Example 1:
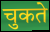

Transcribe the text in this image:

चुकते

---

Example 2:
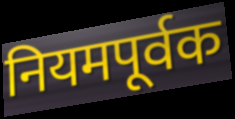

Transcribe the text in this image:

नियमपूर्वक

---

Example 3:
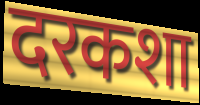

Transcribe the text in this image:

दरकशा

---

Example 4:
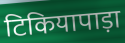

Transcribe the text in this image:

टिकियापाड़ा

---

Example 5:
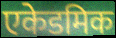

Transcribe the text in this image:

एकेडमिक